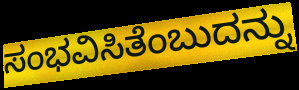
ಸಂಭವಿಸಿತೆಂಬುದನ್ನು